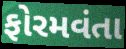
ફોરમવંતા